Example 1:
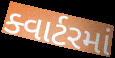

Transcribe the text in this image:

ક્વાર્ટરમાં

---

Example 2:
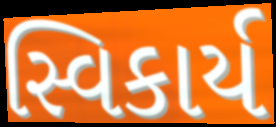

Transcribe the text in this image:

સ્વિકાર્ય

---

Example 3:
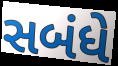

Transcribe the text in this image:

સબંધે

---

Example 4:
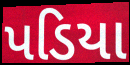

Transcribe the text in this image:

પડિયા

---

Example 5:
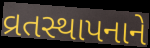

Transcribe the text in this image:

વ્રતસ્થાપનાને